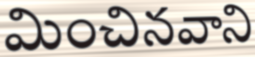
మించినవాని